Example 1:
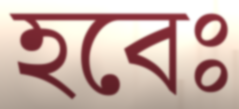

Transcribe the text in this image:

হবেঃ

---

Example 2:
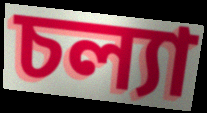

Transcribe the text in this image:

চল্যা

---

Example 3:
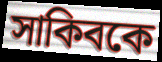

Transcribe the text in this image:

সাকিবকে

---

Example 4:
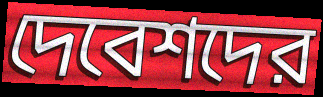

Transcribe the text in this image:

দেবেশদের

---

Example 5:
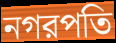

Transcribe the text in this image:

নগরপতি